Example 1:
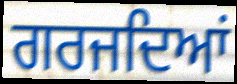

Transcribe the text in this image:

ਗਰਜਦਿਆਂ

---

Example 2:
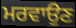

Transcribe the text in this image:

ਮਰਵਾਉਣ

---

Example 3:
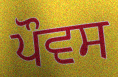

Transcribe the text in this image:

ਪੌਵਸ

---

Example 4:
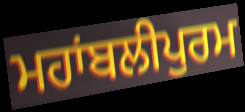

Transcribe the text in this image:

ਮਹਾਂਬਲੀਪੁਰਮ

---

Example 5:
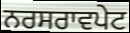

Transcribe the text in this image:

ਨਰਸਰਾਵਪੇਟ